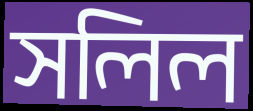
সলিল